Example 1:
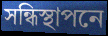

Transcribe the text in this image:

সন্ধিস্থাপনে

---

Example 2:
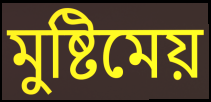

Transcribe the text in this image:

মুষ্টিমেয়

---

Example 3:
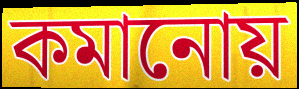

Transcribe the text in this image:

কমানোয়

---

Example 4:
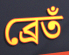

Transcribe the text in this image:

ব্রেতঁ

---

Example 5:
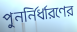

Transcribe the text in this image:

পুনর্নির্ধারণের